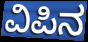
ವಿಪಿನ